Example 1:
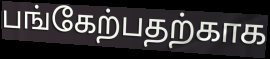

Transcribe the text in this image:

பங்கேற்பதற்காக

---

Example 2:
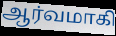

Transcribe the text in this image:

ஆர்வமாகி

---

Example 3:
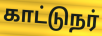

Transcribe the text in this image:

காட்டுநர்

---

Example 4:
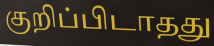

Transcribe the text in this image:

குறிப்பிடாதது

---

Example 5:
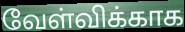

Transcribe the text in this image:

வேள்விக்காக